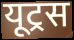
यूट्रस